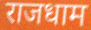
राजधाम